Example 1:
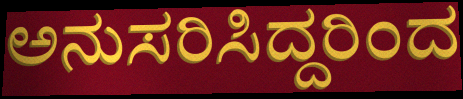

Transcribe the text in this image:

ಅನುಸರಿಸಿದ್ದರಿಂದ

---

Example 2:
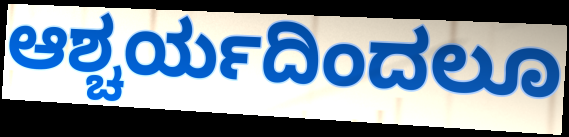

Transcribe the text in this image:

ಆಶ್ಚರ್ಯದಿಂದಲೂ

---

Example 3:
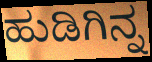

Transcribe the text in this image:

ಹುಡಿಗಿನ್ನ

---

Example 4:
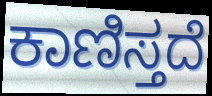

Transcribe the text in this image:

ಕಾಣಿಸ್ತದೆ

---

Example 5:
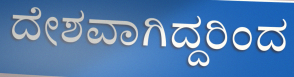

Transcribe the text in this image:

ದೇಶವಾಗಿದ್ದರಿಂದ